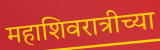
महाशिवरात्रीच्या